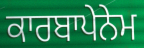
ਕਾਰਬਾਪੇਨੇਮ